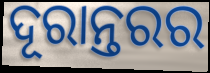
ଦୂରାନ୍ତରର